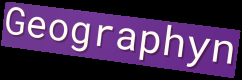
Geographyn